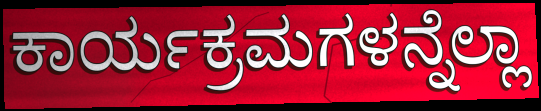
ಕಾರ್ಯಕ್ರಮಗಳನ್ನೆಲ್ಲಾ